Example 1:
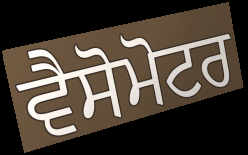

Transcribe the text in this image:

ਵੈਸੋਮੋਟਰ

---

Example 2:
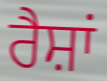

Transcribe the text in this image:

ਰੈਸ਼ਾਂ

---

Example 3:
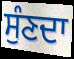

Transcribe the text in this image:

ਸੁੰਣਦਾ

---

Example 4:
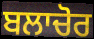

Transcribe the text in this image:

ਬਲਾਚੋਰ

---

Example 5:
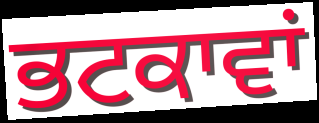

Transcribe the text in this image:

ਭਟਕਾਵਾਂ